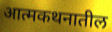
आत्मकथनातील